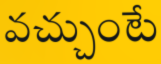
వచ్చుంటే